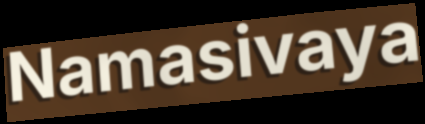
Namasivaya